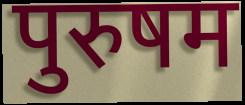
पुरुषम